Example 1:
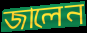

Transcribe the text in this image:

জালেন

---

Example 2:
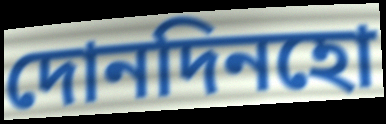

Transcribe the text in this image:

দোনদিনহো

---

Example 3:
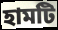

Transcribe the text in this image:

হামটি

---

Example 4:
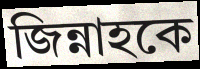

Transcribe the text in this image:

জিন্নাহকে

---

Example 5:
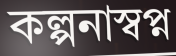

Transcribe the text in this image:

কল্পনাস্বপ্ন